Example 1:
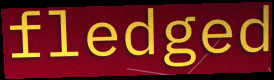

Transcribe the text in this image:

fledged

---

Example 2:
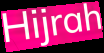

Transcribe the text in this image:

Hijrah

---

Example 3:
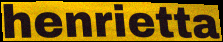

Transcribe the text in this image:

henrietta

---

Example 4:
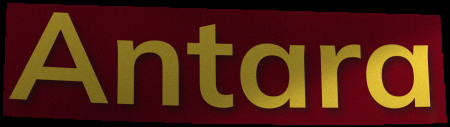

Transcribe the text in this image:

Antara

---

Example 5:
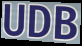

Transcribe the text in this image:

UDB